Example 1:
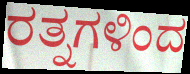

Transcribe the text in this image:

ರತ್ನಗಳಿಂದ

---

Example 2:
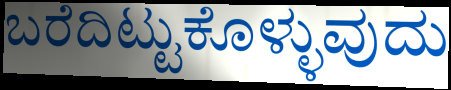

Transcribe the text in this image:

ಬರೆದಿಟ್ಟುಕೊಳ್ಳುವುದು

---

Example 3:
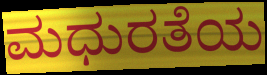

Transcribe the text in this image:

ಮಧುರತೆಯ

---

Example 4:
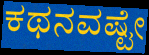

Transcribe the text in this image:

ಕಥನವಷ್ಟೇ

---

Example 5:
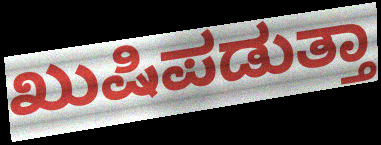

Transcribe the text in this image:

ಖುಷಿಪಡುತ್ತಾ